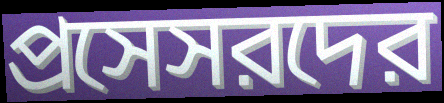
প্রসেসরদের